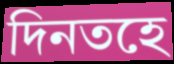
দিনতহে